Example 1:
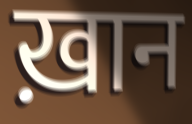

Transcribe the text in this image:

ख़ान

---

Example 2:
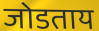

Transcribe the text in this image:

जोडताय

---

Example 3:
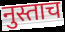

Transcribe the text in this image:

नुस्ताच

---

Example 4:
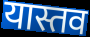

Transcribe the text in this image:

यास्तव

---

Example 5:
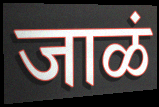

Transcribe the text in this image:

जाळं